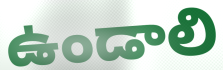
ఉండాలి